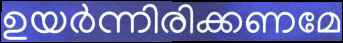
ഉയർന്നിരിക്കണമേ